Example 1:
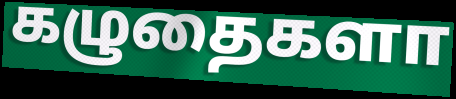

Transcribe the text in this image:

கழுதைகளா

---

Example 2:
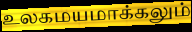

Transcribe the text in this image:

உலகமயமாக்கலும்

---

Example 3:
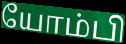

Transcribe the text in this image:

யோம்பி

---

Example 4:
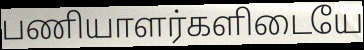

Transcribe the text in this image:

பணியாளர்களிடையே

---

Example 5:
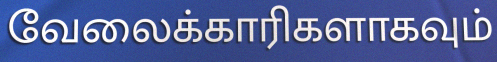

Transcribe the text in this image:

வேலைக்காரிகளாகவும்